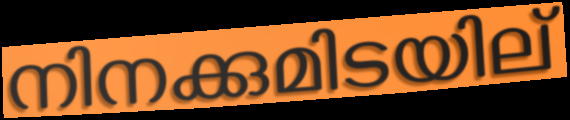
നിനക്കുമിടയില്